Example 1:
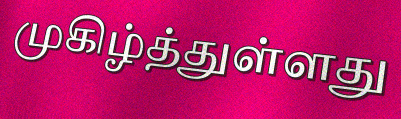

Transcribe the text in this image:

முகிழ்த்துள்ளது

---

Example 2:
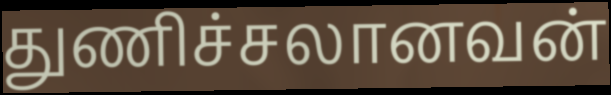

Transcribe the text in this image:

துணிச்சலானவன்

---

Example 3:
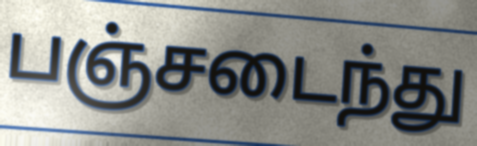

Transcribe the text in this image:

பஞ்சடைந்து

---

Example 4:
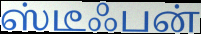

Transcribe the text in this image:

ஸ்டீஃபன்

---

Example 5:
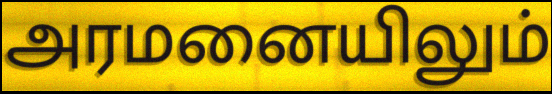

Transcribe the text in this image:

அரமனையிலும்